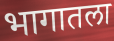
भागातला